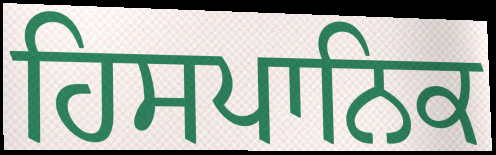
ਹਿਸਪਾਨਿਕ